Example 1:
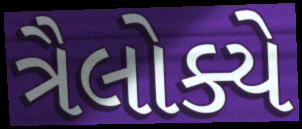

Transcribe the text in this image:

ત્રૈલોક્યે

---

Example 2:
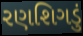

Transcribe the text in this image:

રણશિગડું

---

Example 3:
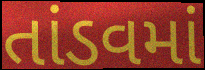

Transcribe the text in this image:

તાંડવમાં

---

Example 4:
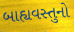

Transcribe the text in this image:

બાહ્યવસ્તુનો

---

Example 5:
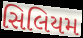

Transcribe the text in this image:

સિલિયમ